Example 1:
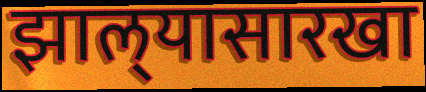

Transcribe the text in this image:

झाल्यासारखा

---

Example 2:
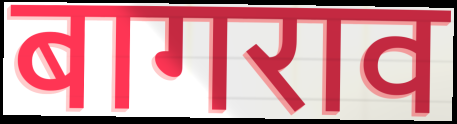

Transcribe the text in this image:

बागराव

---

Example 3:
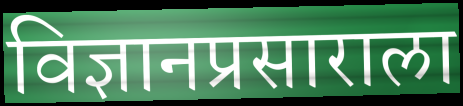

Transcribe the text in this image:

विज्ञानप्रसाराला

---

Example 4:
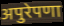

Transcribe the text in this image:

अपुरेपणा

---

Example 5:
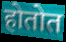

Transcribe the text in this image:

होतोत